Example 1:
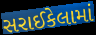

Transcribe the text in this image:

સરાઈકેલામાં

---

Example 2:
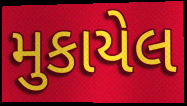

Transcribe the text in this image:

મુકાયેલ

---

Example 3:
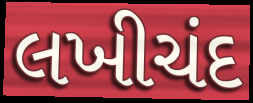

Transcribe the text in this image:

લખીચંદ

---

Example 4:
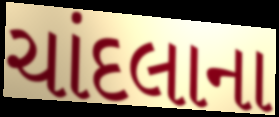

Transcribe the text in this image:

ચાંદલાના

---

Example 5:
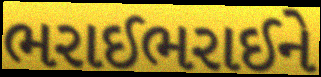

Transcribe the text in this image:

ભરાઈભરાઈને